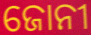
ଜୋନୀ